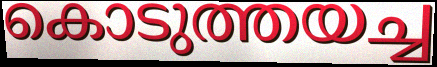
കൊടുത്തയച്ച